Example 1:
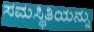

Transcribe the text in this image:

ಸಮಸ್ಥಿತಿಯನ್ನು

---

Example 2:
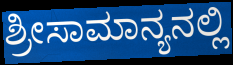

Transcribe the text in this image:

ಶ್ರೀಸಾಮಾನ್ಯನಲ್ಲಿ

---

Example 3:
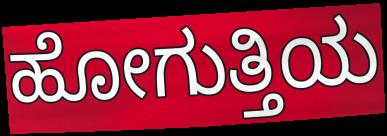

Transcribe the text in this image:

ಹೋಗುತ್ತಿಯ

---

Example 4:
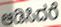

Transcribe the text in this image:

ಆಡಿಸಿದರೆ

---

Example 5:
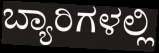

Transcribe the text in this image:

ಬ್ಯಾರಿಗಳಲ್ಲಿ